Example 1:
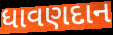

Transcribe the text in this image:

ધાવણદાન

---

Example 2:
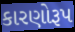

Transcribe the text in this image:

કારણોરૂપ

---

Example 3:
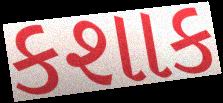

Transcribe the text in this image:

કશાક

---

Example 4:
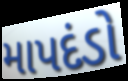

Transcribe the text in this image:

માપદંડો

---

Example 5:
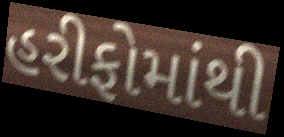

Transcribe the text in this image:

હરીફોમાંથી